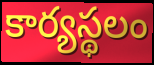
కార్యస్థలం